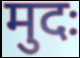
मुदः